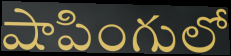
షాపింగులో